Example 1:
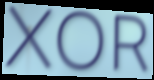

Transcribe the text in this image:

XOR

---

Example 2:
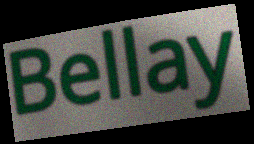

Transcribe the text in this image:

Bellay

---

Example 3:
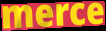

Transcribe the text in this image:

merce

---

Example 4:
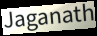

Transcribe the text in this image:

Jaganath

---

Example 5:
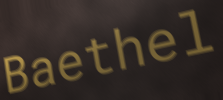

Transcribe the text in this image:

Baethel